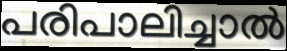
പരിപാലിച്ചാൽ